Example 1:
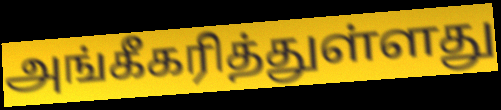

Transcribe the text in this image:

அங்கீகரித்துள்ளது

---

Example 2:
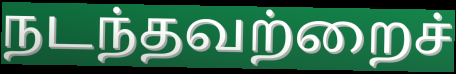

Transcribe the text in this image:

நடந்தவற்றைச்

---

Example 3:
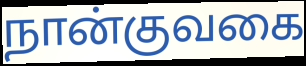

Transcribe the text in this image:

நான்குவகை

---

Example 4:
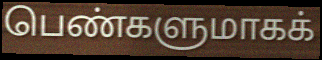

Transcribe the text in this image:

பெண்களுமாகக்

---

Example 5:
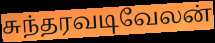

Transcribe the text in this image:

சுந்தரவடிவேலன்